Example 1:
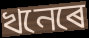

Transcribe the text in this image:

খনেৰে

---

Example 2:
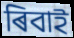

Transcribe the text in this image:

ৰিবাই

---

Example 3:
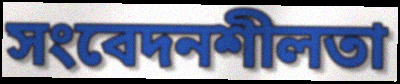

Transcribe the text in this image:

সংবেদনশীলতা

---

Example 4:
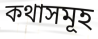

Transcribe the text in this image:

কথাসমূহ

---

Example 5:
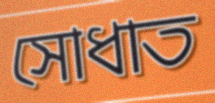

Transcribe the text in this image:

সোধাত